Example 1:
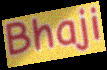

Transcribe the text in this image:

Bhaji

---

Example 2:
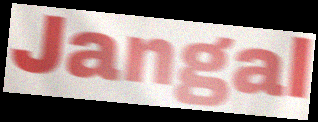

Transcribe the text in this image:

Jangal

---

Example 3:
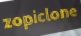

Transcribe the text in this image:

zopiclone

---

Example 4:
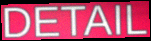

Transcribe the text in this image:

DETAIL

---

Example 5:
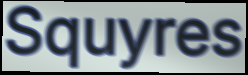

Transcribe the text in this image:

Squyres